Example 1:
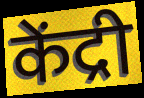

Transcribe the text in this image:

केंद्री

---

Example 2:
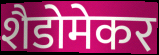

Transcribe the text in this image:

शैडोमेकर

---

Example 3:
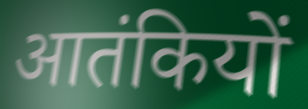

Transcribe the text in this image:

आतंकियों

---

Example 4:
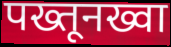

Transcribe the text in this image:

पख्तूनख्वा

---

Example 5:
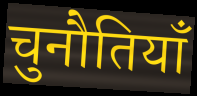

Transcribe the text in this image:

चुनौतियॉं